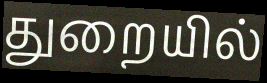
துறையில்